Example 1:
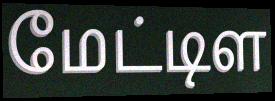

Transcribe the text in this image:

மேட்டிள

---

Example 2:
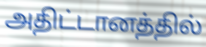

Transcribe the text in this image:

அதிட்டானத்தில்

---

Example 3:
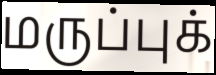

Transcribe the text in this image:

மருப்புக்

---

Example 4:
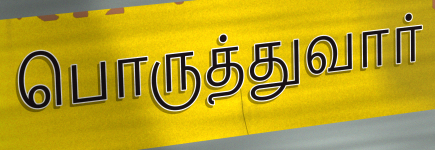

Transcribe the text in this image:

பொருத்துவார்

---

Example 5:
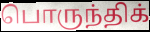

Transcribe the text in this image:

பொருந்திக்